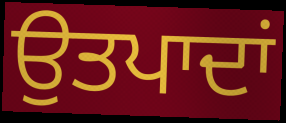
ਉਤਪਾਦਾਂ